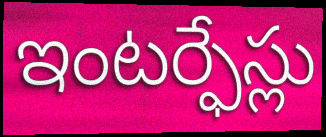
ఇంటర్ఫేస్లు